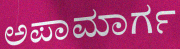
ಅಪಾಮಾರ್ಗ